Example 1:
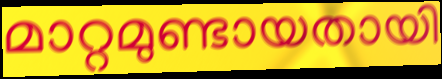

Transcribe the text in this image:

മാറ്റമുണ്ടായതായി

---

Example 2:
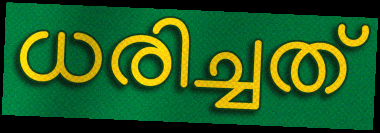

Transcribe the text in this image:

ധരിച്ചത്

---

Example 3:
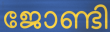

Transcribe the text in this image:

ജോണ്ടി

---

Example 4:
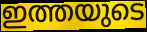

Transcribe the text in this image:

ഇത്തയുടെ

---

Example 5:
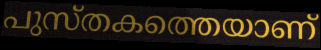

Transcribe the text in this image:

പുസ്തകത്തെയാണ്